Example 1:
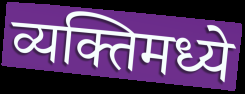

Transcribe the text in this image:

व्यक्तिमध्ये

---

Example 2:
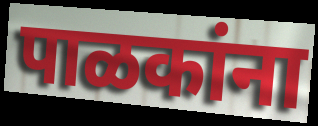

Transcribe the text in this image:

पाळकांना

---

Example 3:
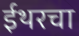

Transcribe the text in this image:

ईथरचा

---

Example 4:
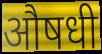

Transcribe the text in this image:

औषधी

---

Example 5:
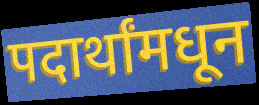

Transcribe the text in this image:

पदार्थांमधून